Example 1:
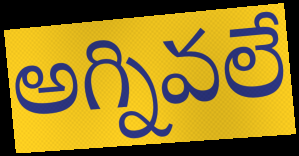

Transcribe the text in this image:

అగ్నివలే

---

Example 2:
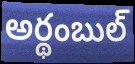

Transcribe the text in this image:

అర్థంబుల్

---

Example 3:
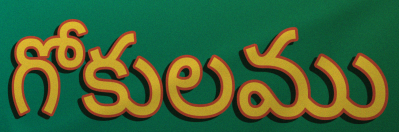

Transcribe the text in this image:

గోకులము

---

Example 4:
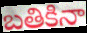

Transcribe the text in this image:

బతికినా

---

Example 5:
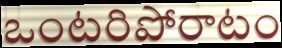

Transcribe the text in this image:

ఒంటరిపోరాటం